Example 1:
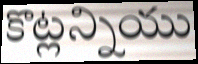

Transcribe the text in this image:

కొట్లన్నియు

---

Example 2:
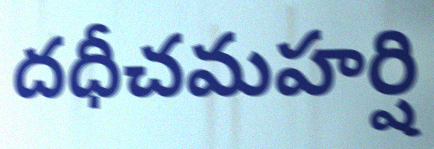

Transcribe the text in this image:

దధీచమహర్షి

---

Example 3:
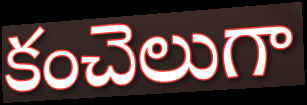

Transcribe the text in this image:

కంచెలుగా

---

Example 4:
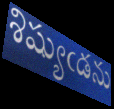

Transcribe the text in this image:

శిష్యుఁడను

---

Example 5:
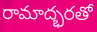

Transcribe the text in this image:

రామాద్భరతో